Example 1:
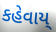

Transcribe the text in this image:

કહેવાય્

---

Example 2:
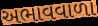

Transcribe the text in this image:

અભાવવાળા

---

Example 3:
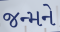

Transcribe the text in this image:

જન્મને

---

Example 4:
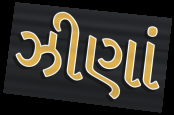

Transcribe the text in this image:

ઝીણાં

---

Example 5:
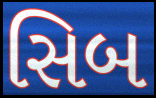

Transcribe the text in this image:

સિબ